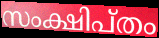
സംക്ഷിപ്തം